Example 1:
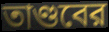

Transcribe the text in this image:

তাণ্ডবের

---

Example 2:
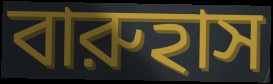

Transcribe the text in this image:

বারুহাস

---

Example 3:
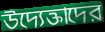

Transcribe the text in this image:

উদ্যেক্তাদের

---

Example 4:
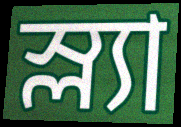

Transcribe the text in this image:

স্ল্যা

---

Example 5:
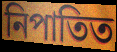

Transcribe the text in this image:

নিপাতিত